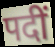
पदीं